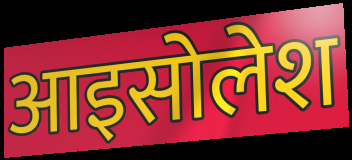
आइसोलेश